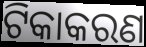
ଟିକାକରଣ